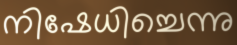
നിഷേധിച്ചെന്നു